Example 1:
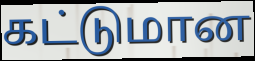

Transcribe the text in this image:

கட்டுமான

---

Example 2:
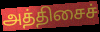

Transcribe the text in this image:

அத்திசைச்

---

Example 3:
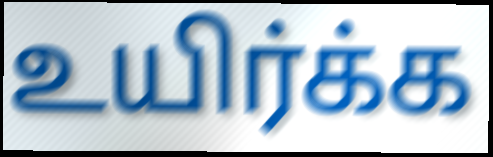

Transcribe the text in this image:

உயிர்க்க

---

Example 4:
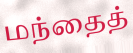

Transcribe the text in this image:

மந்தைத்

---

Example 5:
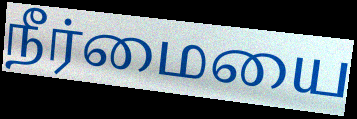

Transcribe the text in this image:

நீர்மையை